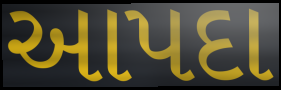
આપદા